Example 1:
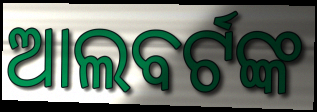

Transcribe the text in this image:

ଆଲବର୍ଟଙ୍କ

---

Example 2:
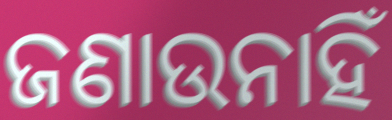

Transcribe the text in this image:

ଜଣାଉନାହିଁ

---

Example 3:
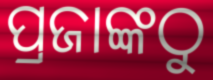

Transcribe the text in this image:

ପ୍ରଜାଙ୍କଠୁ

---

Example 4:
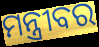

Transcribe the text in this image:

ମନ୍ତ୍ରୀବର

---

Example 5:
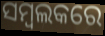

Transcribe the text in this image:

ସମ୍ବଲକରେ